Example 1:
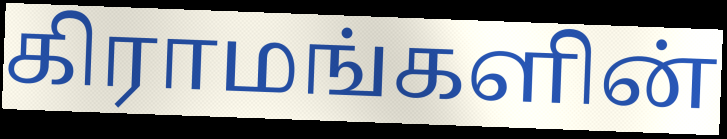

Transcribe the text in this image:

கிராமங்களின்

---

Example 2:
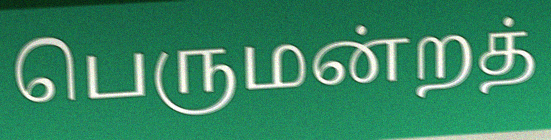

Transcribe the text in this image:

பெருமன்றத்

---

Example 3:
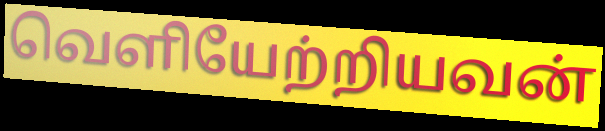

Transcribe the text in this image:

வெளியேற்றியவன்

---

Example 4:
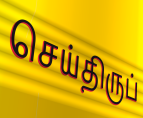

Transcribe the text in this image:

செய்திருப்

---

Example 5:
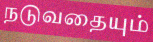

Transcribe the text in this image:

நடுவதையும்